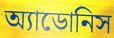
অ্যাডোনিস